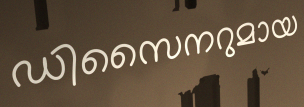
ഡിസൈനറുമായ